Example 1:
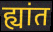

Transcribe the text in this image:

ह्यांत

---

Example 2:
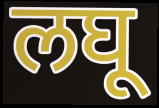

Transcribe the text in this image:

लघू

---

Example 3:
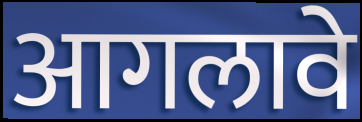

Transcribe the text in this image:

आगलावे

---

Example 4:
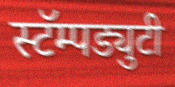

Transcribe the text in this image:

स्टॅम्पड्युटी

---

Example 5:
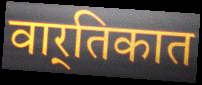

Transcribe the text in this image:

वार्तिकात